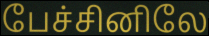
பேச்சினிலே